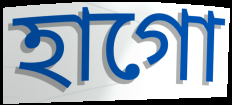
হাগো